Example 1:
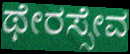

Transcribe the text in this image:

ಥೇರಸ್ಸೇವ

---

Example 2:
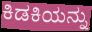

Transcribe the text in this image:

ಕಿಡಕಿಯನ್ನು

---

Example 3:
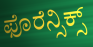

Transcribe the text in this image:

ಫೊರೆನ್ಸಿಕ್ಸ್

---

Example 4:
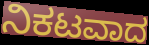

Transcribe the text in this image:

ನಿಕಟವಾದ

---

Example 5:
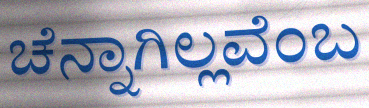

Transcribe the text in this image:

ಚೆನ್ನಾಗಿಲ್ಲವೆಂಬ